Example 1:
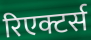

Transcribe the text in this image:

रिएक्टर्स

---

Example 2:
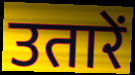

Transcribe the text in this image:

उतारें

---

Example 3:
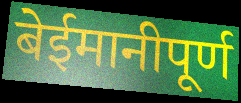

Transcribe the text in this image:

बेईमानीपूर्ण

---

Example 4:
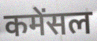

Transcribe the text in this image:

कमेंसल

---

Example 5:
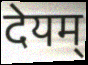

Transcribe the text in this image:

देयम्